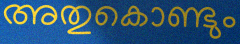
അതുകൊണ്ടും